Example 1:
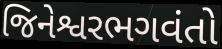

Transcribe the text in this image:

જિનેશ્વરભગવંતો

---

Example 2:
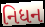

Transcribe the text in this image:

નિધન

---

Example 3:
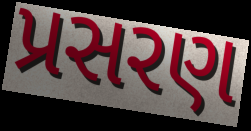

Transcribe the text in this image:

પ્રસરણ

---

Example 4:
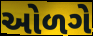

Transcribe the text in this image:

ઓળગે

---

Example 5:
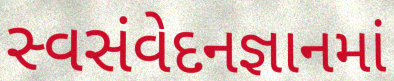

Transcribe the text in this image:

સ્વસંવેદનજ્ઞાનમાં